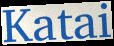
Katai